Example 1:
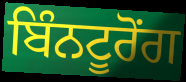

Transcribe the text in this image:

ਬਿੰਨਟੂਰੋਂਗ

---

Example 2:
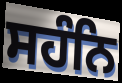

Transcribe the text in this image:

ਸਹੰਨਿ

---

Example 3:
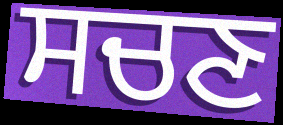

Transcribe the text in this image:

ਸਚਣ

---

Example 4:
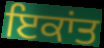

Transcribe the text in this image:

ਇਕਾਂਤ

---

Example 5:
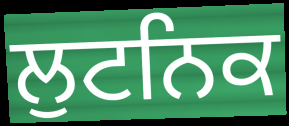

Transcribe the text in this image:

ਲੁਟਨਿਕ